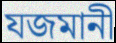
যজমানী